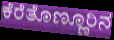
ಕೆರೆತೊಣ್ಣೂರಿನ